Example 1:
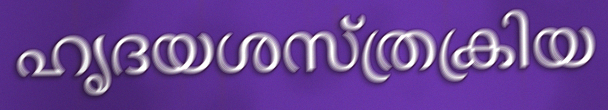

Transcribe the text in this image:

ഹൃദയശസ്ത്രക്രിയ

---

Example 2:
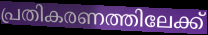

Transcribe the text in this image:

പ്രതികരണത്തിലേക്ക്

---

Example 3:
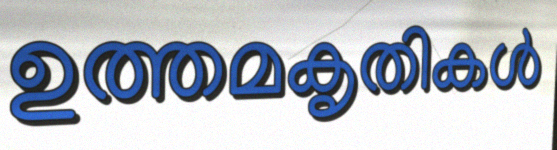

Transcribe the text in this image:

ഉത്തമകൃതികൾ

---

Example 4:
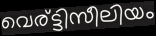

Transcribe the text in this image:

വെര്ട്ടിസീലിയം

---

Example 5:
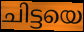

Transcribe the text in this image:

ചിട്ടയെ